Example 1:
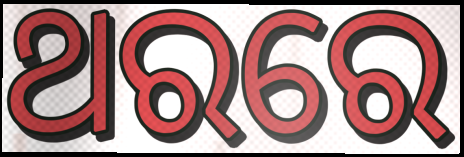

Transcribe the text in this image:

ଥରରେ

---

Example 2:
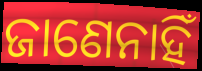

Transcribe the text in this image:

ଜାଣେନାହିଁ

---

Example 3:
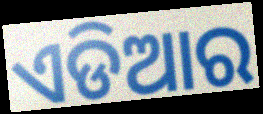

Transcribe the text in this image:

ଏଡିଆର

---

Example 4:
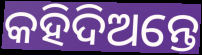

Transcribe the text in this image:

କହିଦିଅନ୍ତେ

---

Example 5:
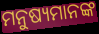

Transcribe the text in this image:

ମନୁଷ୍ୟମାନଙ୍କ